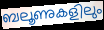
ബലൂണുകളിലും